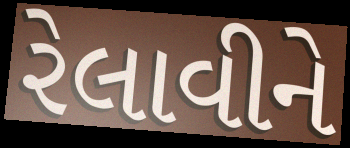
રેલાવીને